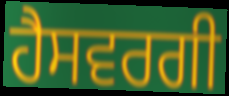
ਹੈਸਵਰਗੀ